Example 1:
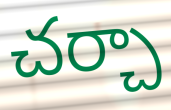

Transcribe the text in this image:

చర్చా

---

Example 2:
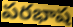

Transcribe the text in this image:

పరభాష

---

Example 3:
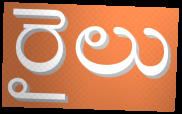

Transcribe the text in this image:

రైలు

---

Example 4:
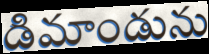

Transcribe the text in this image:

డిమాండును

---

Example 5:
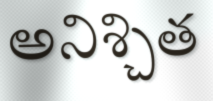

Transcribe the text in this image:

అనిశ్చిత